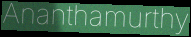
Ananthamurthy